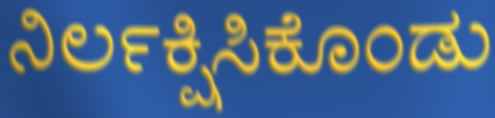
ನಿರ್ಲಕ್ಷಿಸಿಕೊಂಡು